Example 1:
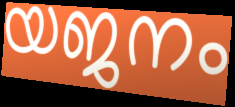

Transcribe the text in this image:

യജനം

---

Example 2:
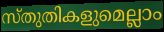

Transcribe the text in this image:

സ്തുതികളുമെല്ലാം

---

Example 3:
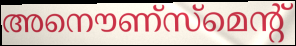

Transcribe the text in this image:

അനൌണ്സ്മെന്റ്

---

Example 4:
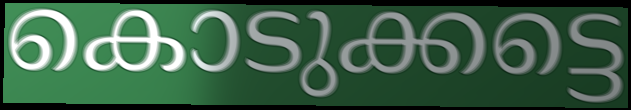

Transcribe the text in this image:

കൊടുക്കട്ടെ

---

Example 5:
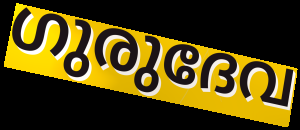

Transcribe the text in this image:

ഗുരുദേവ